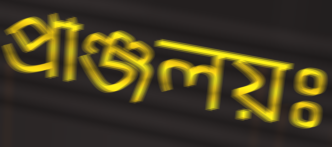
প্রাঞ্জলয়ঃ